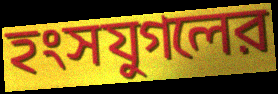
হংসযুগলের